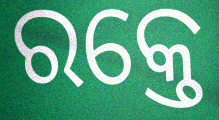
ରକ୍ତେ